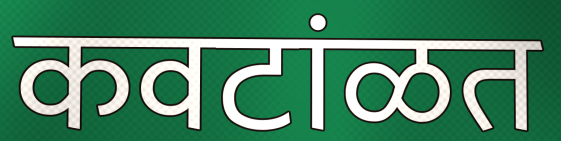
कवटांळत